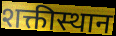
शक्तीस्थान